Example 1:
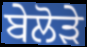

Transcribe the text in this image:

ਬੇਲੋੜੇ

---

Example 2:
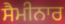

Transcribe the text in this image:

ਸੈਮੀਨਾਰ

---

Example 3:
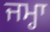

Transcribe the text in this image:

ਜਮ੍ਹਾ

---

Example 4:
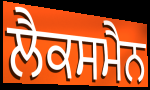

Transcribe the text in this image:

ਲੈਕਸਮੈਨ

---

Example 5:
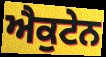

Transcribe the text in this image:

ਐਕੁਟੇਨ